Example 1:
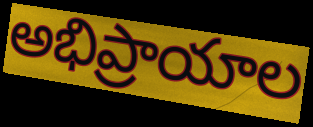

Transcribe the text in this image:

అభిప్రాయాల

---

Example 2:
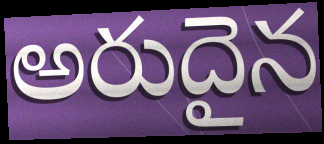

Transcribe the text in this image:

అరుదైన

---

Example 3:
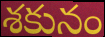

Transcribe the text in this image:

శకునం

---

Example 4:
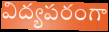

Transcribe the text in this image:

విద్యపరంగా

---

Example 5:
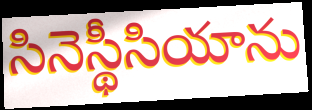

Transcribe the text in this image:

సినెస్థీసియాను